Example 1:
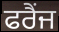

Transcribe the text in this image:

ਫਰੈਂਜ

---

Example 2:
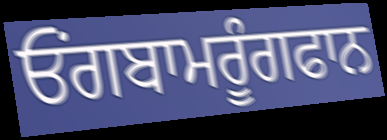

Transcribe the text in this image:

ਓਂਗਬਾਮਰੂੰਗਫਾਨ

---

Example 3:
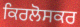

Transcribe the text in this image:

ਕਿਰਲੋਸਕਰ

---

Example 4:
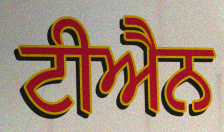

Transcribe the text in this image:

ਟੀਐਨ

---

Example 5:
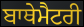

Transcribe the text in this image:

ਬਾਥੇਮੈਟਰੀ